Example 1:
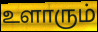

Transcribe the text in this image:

உளாரும்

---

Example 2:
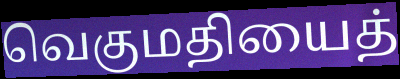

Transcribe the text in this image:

வெகுமதியைத்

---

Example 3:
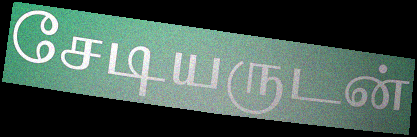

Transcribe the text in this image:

சேடியருடன்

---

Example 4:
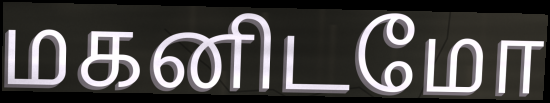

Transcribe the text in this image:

மகனிடமோ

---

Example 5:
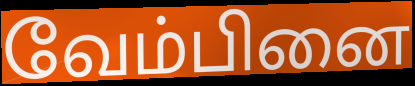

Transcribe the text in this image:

வேம்பினை